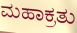
ಮಹಾಕ್ರತು